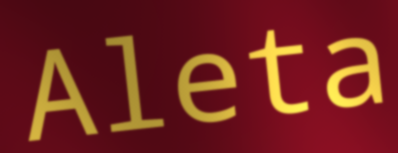
Aleta